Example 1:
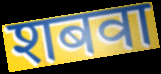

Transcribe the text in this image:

शबवा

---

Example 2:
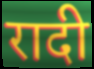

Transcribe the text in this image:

रादी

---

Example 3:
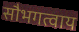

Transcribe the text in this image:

सौभगत्वाय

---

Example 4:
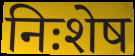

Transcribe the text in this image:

निःशेष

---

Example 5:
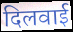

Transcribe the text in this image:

दिलवाई